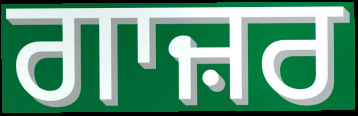
ਗਾਜ਼ਰ